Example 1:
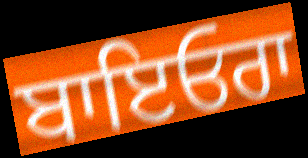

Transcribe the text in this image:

ਬਾਇਓਰਾ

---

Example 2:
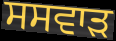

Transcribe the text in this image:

ਸਸਵਾੜ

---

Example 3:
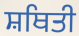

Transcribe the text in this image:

ਸ਼ਥਿਤੀ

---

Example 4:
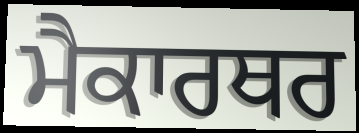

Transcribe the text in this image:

ਮੈਕਾਰਥਰ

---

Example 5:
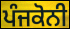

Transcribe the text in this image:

ਪੰਜਕੋਨੀ